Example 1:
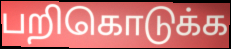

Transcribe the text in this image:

பறிகொடுக்க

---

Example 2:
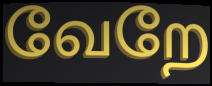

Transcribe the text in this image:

வேறே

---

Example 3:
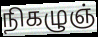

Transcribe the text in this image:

நிகழுஞ்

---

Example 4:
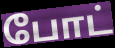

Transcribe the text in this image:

போட்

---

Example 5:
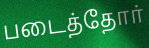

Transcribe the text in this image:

படைத்தோர்